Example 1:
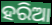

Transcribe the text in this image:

ହରିଆ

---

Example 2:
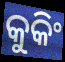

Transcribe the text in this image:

କୁକିଂ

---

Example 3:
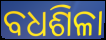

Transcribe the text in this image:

ବଧଶିଳା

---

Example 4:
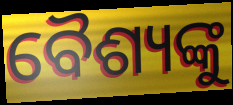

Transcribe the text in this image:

ବୈଶ୍ୟଙ୍କୁ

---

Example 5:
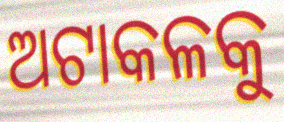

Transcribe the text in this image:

ଅଟାକଳକୁ